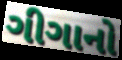
ગીગાનો